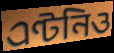
এণ্টনিও